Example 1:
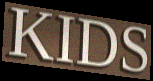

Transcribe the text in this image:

KIDS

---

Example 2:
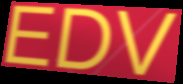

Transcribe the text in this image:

EDV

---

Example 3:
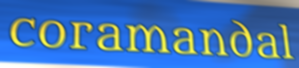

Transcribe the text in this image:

coramandal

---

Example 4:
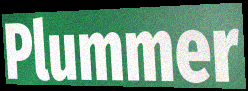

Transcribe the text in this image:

Plummer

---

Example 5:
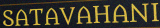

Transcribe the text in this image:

SATAVAHANI